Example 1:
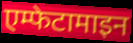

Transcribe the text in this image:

एम्फेटामाइन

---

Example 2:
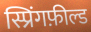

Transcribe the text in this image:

स्प्रिंगफ़ील्ड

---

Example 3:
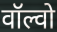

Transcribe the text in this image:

वॉल्वो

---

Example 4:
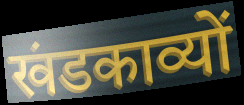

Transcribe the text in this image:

खंडकाव्यों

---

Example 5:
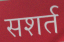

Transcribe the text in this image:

सशर्त